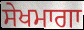
ਸੇਖਮਾਗਾ